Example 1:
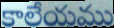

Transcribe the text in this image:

కాలేయము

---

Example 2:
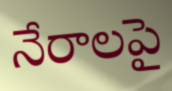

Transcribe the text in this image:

నేరాలపై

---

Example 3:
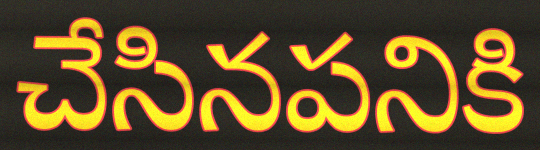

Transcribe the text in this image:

చేసినపనికి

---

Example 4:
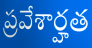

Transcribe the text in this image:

ప్రవేశార్హత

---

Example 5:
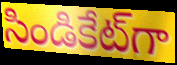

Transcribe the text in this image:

సిండికేట్‌గా